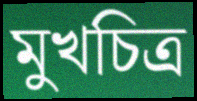
মুখচিত্র